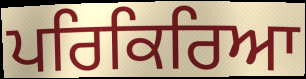
ਪਰਿਕਿਰਿਆ